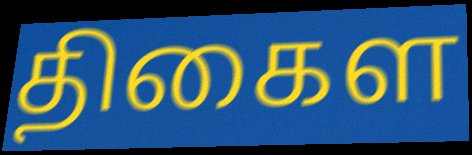
திகைள